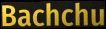
Bachchu